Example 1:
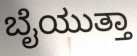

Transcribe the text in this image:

ಬೈಯುತ್ತಾ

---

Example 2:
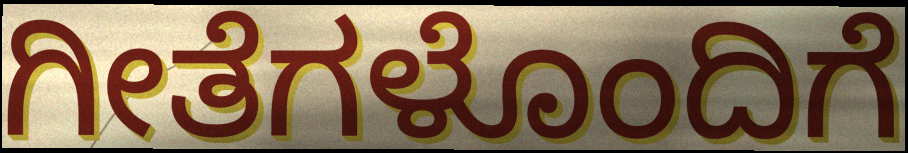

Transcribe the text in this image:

ಗೀತೆಗಳೊಂದಿಗೆ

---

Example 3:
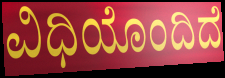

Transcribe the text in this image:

ವಿಧಿಯೊಂದಿದೆ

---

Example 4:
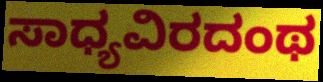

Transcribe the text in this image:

ಸಾಧ್ಯವಿರದಂಥ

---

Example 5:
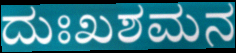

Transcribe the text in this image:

ದುಃಖಶಮನ